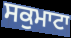
ਸਕੁਮਾਟਾ